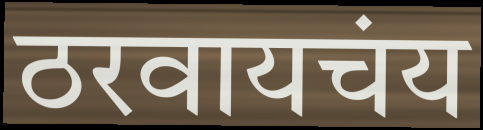
ठरवायचंय